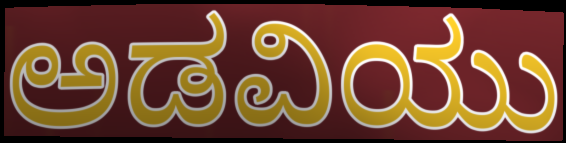
ಅಡವಿಯು